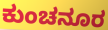
ಕುಂಚನೂರ